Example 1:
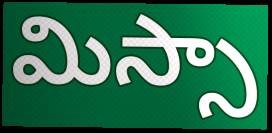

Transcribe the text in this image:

మిస్సా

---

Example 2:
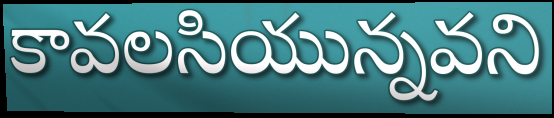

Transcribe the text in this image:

కావలసియున్నవని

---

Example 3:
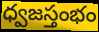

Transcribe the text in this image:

ధ్వజస్తంభం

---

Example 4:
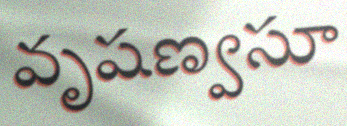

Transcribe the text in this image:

వృషణ్వసూ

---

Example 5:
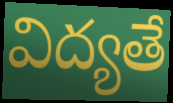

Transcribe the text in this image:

విద్యతే